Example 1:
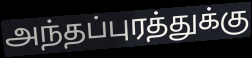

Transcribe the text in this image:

அந்தப்புரத்துக்கு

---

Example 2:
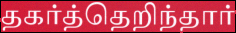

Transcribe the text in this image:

தகர்த்தெறிந்தார்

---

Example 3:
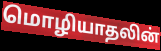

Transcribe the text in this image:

மொழியாதலின்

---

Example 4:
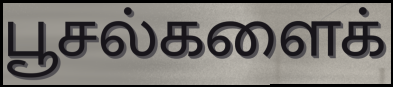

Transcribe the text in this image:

பூசல்களைக்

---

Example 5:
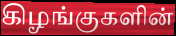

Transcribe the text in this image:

கிழங்குகளின்